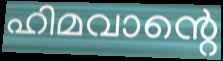
ഹിമവാന്റെ